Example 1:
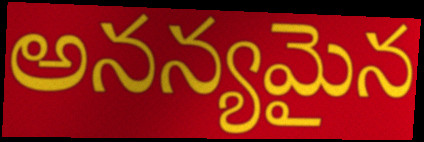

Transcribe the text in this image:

అనన్యమైన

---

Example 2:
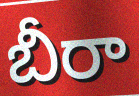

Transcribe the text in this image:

బీరా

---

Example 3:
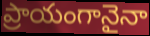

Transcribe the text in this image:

ప్రాయంగానైనా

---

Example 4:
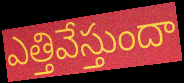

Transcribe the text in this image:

ఎత్తివేస్తుందా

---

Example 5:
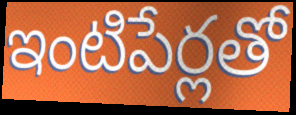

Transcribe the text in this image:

ఇంటిపేర్లతో